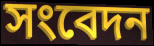
সংবেদন